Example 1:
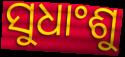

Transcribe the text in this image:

ସୁଧାଂଶୁ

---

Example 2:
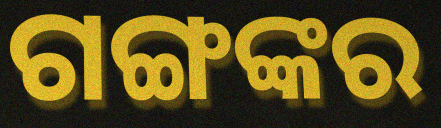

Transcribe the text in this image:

ଗଙ୍ଗଙ୍କର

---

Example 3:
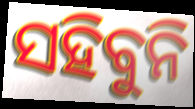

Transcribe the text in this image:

ସହିବୁନି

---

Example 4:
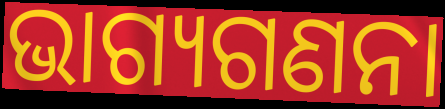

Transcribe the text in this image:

ଭାଗ୍ୟଗଣନା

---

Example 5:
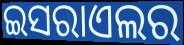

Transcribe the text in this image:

ଇସରାଏଲର